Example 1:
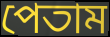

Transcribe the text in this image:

পেতাম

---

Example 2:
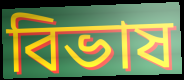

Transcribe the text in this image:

বিভাষ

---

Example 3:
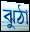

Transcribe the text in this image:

ঝুঠা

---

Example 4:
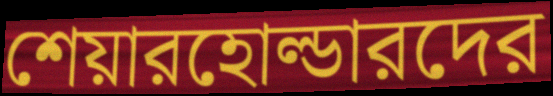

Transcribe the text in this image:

শেয়ারহোল্ডারদের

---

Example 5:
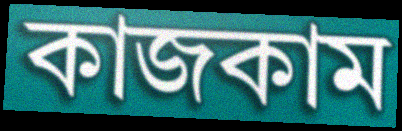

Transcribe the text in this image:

কাজকাম